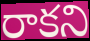
రాకని